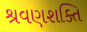
શ્રવણશક્તિ